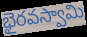
భైరవస్వామి